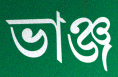
ভাঞ্জ